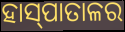
ହାସ୍‍ପାତାଳର